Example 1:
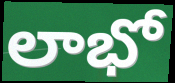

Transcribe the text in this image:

లాభో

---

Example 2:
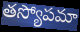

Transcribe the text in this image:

తస్యోపమా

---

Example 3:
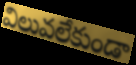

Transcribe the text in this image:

విలువలేకుండా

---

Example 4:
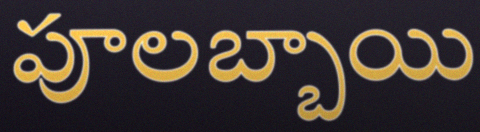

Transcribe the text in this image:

పూలబ్బాయి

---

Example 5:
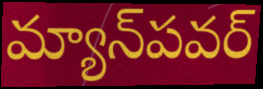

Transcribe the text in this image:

మ్యాన్‌పవర్